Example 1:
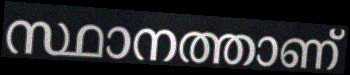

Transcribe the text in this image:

സ്ഥാനത്താണ്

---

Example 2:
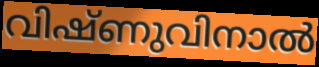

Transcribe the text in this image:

വിഷ്ണുവിനാൽ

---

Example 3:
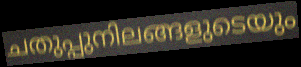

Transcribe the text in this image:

ചതുപ്പുനിലങ്ങളുടെയും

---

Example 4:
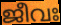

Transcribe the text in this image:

ജീവഃ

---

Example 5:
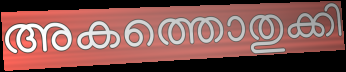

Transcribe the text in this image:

അകത്തൊതുക്കി